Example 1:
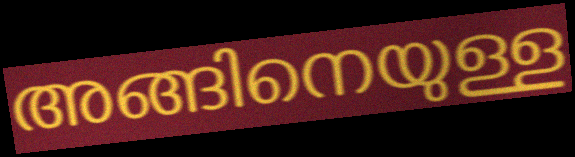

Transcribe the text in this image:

അങ്ങിനെയുള്ള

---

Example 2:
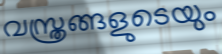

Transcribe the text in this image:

വസ്ത്രങ്ങളുടെയും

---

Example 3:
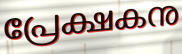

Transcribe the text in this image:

പ്രേക്ഷകനു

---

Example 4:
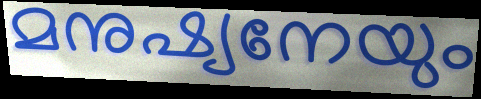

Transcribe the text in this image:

മനുഷ്യനേയും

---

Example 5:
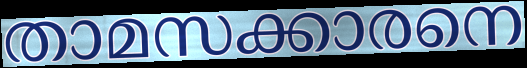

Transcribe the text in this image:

താമസക്കാരനെ